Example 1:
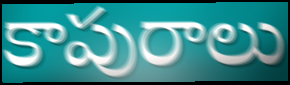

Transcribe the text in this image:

కాపురాలు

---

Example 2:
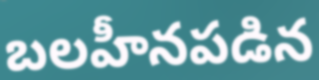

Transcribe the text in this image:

బలహీనపడిన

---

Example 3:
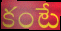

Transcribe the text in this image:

కంటే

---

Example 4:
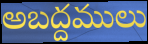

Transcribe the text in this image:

అబద్దములు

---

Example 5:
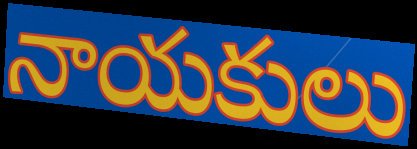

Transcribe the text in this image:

నాయకులు